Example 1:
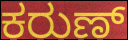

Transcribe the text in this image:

ಕರುಣ್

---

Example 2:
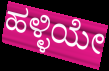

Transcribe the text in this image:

ಹಳ್ಳಿಯೇ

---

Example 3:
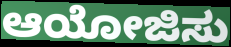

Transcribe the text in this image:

ಆಯೋಜಿಸು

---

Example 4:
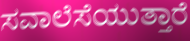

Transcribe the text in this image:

ಸವಾಲೆಸೆಯುತ್ತಾರೆ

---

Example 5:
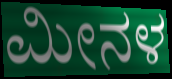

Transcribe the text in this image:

ಮೀನಳ